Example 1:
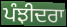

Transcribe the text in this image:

ਪੰਝੀਦਰਾ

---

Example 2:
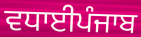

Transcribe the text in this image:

ਵਧਾਈਪੰਜਾਬ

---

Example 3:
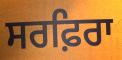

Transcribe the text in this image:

ਸਰਫ਼ਿਰਾ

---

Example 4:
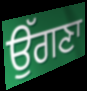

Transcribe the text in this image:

ਉੱਗਣਾ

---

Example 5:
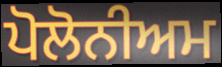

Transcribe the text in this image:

ਪੋਲੋਨੀਅਮ